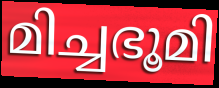
മിച്ചഭൂമി